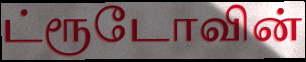
ட்ரூடோவின்